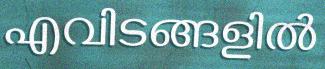
എവിടങ്ങളിൽ